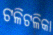
ଟଳିଟଳିକା